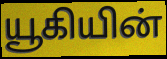
யூகியின்